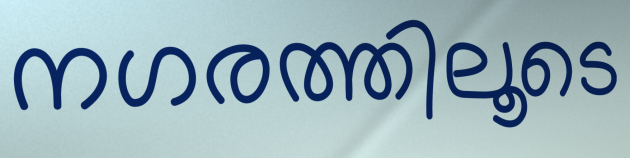
നഗരത്തിലൂടെ